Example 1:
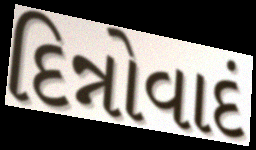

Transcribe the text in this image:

દિન્નોવાદં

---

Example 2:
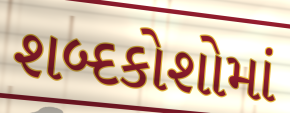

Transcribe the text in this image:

શબ્દકોશોમાં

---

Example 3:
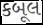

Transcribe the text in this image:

કબૂલ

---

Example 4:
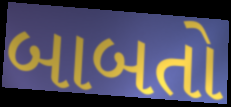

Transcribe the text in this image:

બાબતો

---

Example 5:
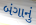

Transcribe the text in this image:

બંગાનું